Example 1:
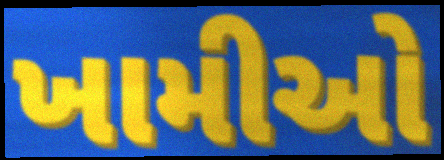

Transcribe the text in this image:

ખામીઓ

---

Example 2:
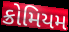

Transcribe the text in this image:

ક્રોમિયમ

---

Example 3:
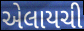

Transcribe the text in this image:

એલાયચી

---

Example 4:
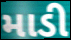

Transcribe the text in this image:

માડી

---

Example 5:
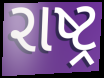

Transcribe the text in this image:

રાષ્ટ્ર